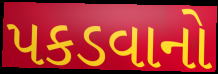
પકડવાનો